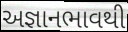
અજ્ઞાનભાવથી